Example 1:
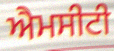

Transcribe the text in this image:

ਐਮਸੀਟੀ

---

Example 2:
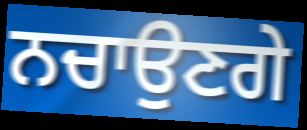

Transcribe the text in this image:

ਨਚਾਉਣਗੇ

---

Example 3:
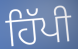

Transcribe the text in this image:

ਹਿੱਪੀ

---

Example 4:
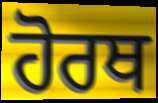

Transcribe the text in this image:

ਹੋਰਥ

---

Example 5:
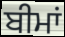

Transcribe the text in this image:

ਬੀਮਾਂ